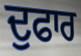
ਦੁਫਾਰ